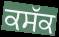
ਕਸੱਕ